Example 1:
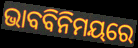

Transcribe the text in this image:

ଭାବବିନିମୟରେ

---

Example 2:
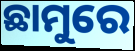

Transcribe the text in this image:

ଛାମୁରେ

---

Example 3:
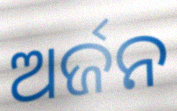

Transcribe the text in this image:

ଅର୍ଜନ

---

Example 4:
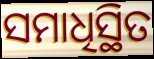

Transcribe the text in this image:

ସମାଧିସ୍ଥିତ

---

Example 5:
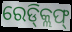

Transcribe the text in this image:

ରେଡ୍କ୍ଲିଫ୍